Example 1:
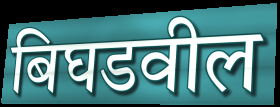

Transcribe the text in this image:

बिघडवील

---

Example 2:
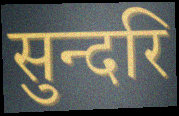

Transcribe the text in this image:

सुन्दरि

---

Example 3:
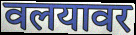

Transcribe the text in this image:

वलयावर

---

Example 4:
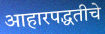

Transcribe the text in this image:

आहारपद्धतीचे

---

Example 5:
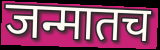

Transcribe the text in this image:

जन्मातच